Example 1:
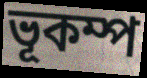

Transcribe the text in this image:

ভূকম্প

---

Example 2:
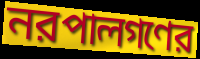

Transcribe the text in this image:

নরপালগণের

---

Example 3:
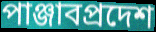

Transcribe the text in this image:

পাঞ্জাবপ্রদেশ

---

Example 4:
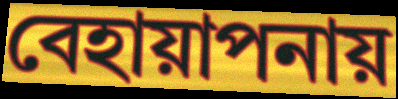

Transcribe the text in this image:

বেহায়াপনায়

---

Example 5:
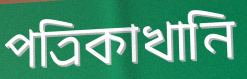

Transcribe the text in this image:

পত্রিকাখানি